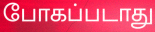
போகப்படாது